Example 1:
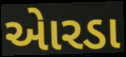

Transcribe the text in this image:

એારડા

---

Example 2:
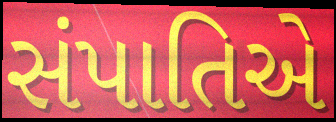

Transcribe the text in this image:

સંપાતિએ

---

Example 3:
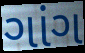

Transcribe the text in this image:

ગાંગ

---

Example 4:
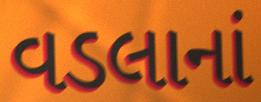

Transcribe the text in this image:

વડલાનાં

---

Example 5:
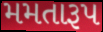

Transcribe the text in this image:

મમતારૂપ